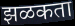
झळकता